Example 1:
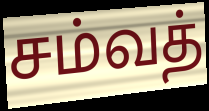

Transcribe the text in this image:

சம்வத்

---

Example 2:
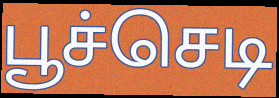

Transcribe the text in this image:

பூச்செடி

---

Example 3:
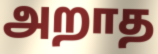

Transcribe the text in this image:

அறாத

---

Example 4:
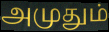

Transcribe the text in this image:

அமுதும்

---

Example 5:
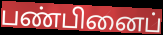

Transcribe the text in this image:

பண்பினைப்